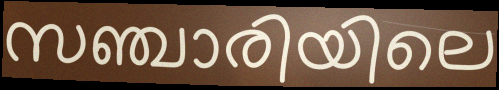
സഞ്ചാരിയിലെ